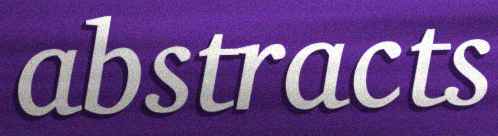
abstracts